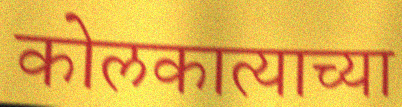
कोलकात्याच्या